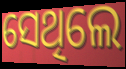
ସେଥିଲେ